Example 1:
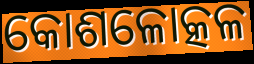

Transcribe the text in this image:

କୋଶଳୋତ୍କଳ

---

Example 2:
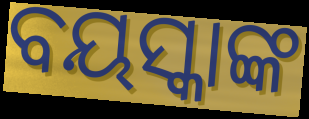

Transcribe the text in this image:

ବୟସ୍କାଙ୍କ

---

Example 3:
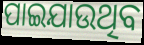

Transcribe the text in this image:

ପାଇଯାଉଥିବ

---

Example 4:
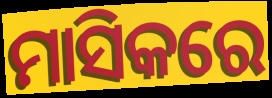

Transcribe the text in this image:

ମାସିକରେ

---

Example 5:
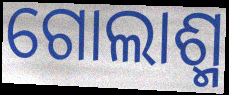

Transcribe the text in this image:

ଗୋଲାଶ୍ମ